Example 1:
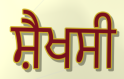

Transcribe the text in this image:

ਸ਼ੈਖਸੀ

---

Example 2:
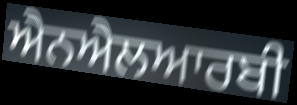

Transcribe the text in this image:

ਐਨਐਲਆਰਬੀ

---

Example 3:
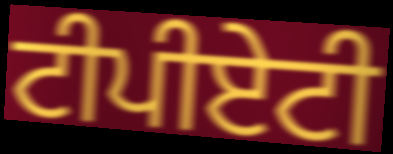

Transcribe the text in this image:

ਟੀਪੀਏਟੀ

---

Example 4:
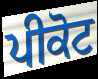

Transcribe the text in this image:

ਪੀਕੋਟ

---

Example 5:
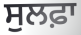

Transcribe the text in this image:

ਸੁਲਫ਼ਾ